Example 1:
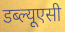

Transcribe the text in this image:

डब्ल्यूएसी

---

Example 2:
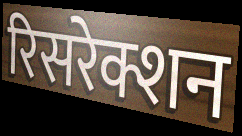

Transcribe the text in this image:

रिसरेक्शन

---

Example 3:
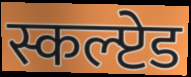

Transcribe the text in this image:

स्कल्प्टेड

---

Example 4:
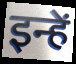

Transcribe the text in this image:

इन्‍हें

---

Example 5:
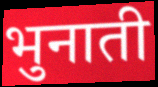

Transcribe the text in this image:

भुनाती